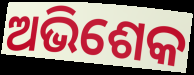
ଅଭିଶେକ